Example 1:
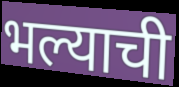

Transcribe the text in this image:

भल्याची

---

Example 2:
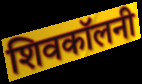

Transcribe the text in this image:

शिवकॉलनी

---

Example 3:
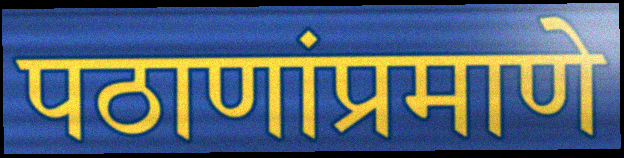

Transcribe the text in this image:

पठाणांप्रमाणे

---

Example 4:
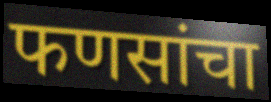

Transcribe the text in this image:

फणसांचा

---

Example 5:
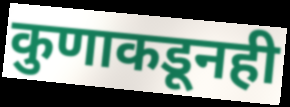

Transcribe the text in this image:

कुणाकडूनही